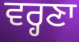
ਵਰ੍ਹਣਾ